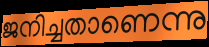
ജനിച്ചതാണെന്നു